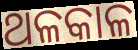
ଥଳକାଳ